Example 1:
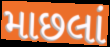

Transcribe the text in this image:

માછલાં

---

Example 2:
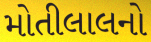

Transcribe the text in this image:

મોતીલાલનો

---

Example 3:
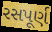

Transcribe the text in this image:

રસપૂર્ણ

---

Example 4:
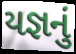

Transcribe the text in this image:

યજ્ઞનું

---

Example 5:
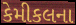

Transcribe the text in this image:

કેમીકલના